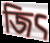
জিৎ